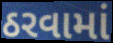
ઠરવામાં